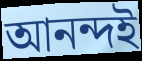
আনন্দই